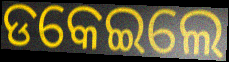
ଡକେଇଲେ